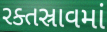
રક્તસ્રાવમાં